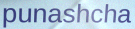
punashcha